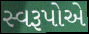
સ્વરૂપોએ